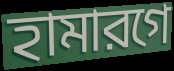
হামারগে